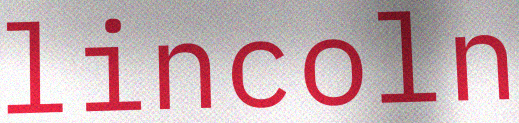
lincoln